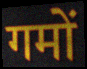
गमों